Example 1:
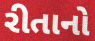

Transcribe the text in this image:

રીતાનો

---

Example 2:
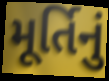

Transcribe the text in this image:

મૂર્તિનું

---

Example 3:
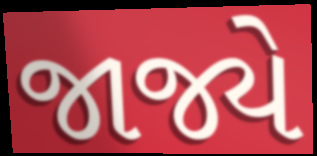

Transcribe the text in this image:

જાજ્યે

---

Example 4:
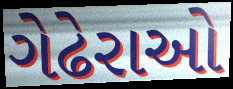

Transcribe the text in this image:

ગેઢેરાઓ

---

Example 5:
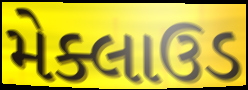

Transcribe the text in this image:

મેક્લાઉડ